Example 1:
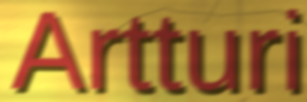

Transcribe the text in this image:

Artturi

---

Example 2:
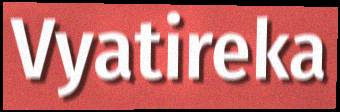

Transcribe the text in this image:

Vyatireka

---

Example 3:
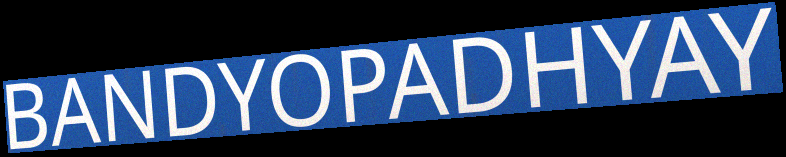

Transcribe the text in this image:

BANDYOPADHYAY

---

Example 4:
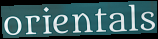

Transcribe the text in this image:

orientals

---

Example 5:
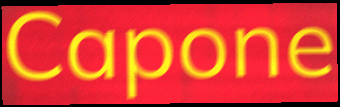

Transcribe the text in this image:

Capone